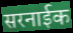
सरनाईक